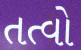
તત્વો